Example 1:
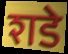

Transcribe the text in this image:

शडे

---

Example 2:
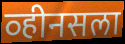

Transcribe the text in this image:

व्हीनसला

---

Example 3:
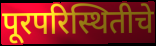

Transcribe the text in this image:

पूरपरिस्थितीचे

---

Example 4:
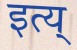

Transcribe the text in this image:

इत्य्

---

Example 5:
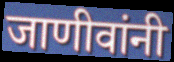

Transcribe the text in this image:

जाणीवांनी